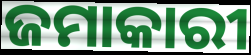
ଜମାକାରୀ